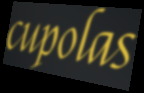
cupolas